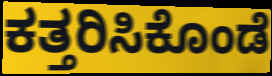
ಕತ್ತರಿಸಿಕೊಂಡೆ